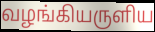
வழங்கியருளிய